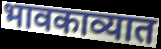
भावकाव्यात